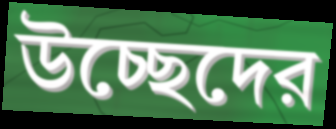
উচ্ছেদের